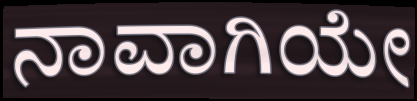
ನಾವಾಗಿಯೇ